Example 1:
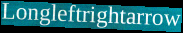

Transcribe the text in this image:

Longleftrightarrow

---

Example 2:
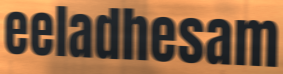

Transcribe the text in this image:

eeladhesam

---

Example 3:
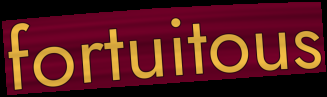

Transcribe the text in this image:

fortuitous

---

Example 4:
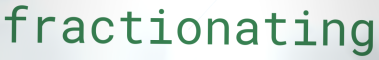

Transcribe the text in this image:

fractionating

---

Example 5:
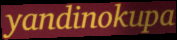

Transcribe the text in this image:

yandinokupa